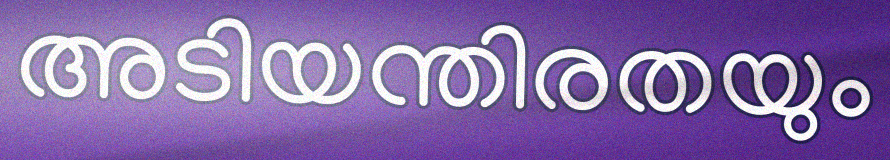
അടിയന്തിരതയും